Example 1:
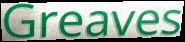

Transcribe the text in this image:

Greaves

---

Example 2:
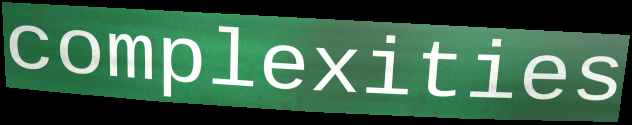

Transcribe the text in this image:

complexities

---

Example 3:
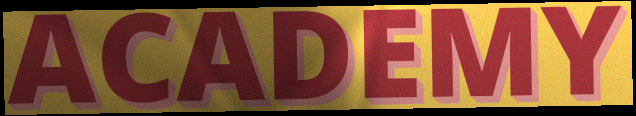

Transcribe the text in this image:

ACADEMY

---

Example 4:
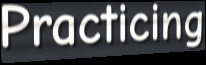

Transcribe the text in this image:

Practicing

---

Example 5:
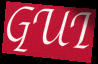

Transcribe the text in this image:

GUI